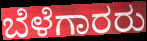
ಬೆಳೆಗಾರರು